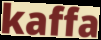
kaffa